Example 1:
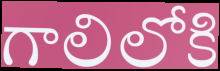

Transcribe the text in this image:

గాలిలోకి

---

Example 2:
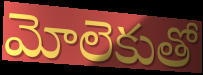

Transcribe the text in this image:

మోలెకుతో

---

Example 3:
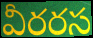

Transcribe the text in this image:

వీరరస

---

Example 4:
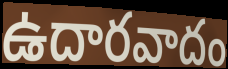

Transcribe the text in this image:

ఉదారవాదం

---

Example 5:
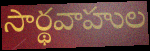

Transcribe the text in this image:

సార్థవాహుల